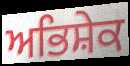
ਅਭਿਸ਼ੇਕ